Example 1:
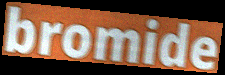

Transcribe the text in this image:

bromide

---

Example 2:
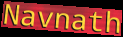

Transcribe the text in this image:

Navnath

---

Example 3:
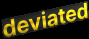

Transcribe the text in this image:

deviated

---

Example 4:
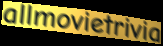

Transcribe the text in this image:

allmovietrivia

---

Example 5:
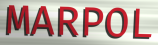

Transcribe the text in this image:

MARPOL